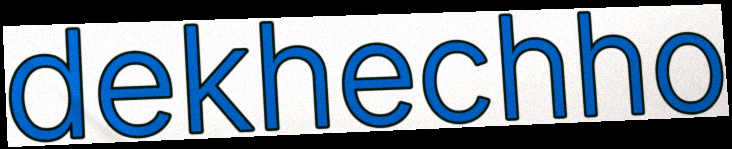
dekhechho